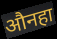
औनहा